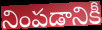
నింపడానికీ